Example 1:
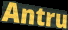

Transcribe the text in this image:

Antru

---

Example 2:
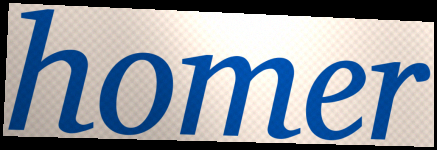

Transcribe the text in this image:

homer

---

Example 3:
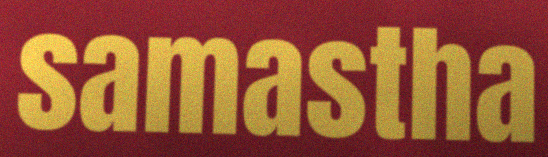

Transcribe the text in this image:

samastha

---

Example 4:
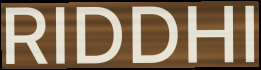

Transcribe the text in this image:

RIDDHI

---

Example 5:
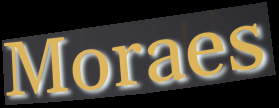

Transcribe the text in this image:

Moraes